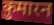
कुमारन